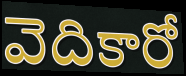
వెదికారో